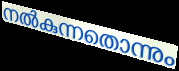
നൽകുന്നതൊന്നും